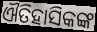
ଐତିହାସିକଙ୍କ